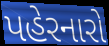
પહેરનારો